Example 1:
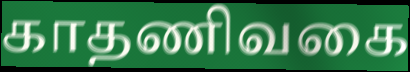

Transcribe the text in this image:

காதணிவகை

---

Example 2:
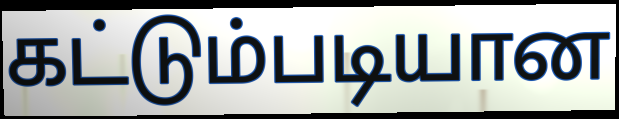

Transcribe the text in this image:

கட்டும்படியான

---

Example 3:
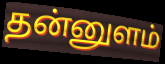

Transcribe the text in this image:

தன்னுளம்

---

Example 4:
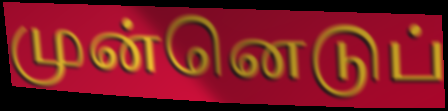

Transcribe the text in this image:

முன்னெடுப்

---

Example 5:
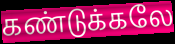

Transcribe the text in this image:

கண்டுக்கலே